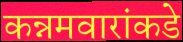
कन्नमवारांकडे